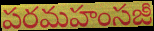
పరమహంసజీ